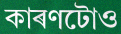
কাৰণটোও